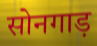
सोनगाड़